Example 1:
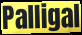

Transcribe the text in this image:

Palligal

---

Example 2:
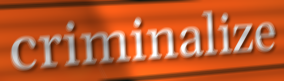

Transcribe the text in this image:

criminalize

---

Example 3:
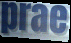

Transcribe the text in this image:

prae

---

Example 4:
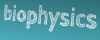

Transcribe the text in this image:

biophysics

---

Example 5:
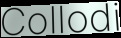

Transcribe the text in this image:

Collodi